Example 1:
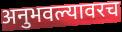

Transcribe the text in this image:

अनुभवल्यावरच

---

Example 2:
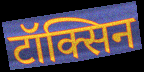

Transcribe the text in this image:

टॉक्सिन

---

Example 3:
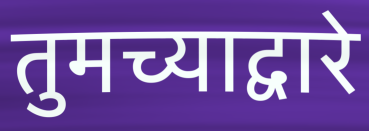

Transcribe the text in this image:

तुमच्याद्वारे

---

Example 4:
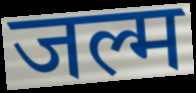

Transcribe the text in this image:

जल्म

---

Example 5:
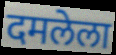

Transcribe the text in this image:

दमलेला